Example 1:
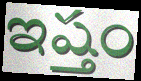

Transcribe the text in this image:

ఇష్తం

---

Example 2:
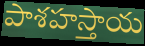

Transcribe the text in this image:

పాశహస్తాయ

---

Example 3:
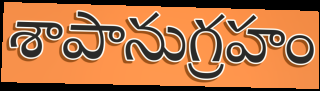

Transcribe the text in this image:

శాపానుగ్రహం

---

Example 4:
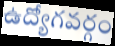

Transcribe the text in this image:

ఉద్యోగవర్గం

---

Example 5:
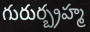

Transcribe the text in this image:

గురుర్బ్రహ్మ